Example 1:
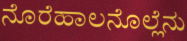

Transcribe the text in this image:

ನೊರೆಹಾಲನೊಲ್ಲೆನು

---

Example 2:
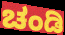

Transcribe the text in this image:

ಚಂಡಿ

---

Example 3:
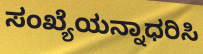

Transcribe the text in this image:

ಸಂಖ್ಯೆಯನ್ನಾಧರಿಸಿ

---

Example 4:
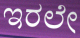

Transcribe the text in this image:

ಇರಲೇ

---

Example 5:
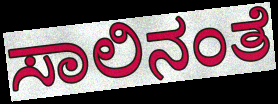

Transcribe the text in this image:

ಸಾಲಿನಂತೆ